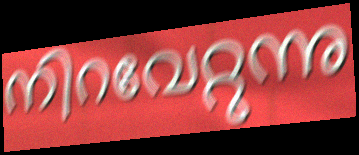
നിറവേറ്റുന്നു